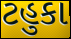
ટહુકા